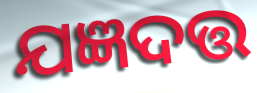
ଯଜ୍ଞଦତ୍ତ